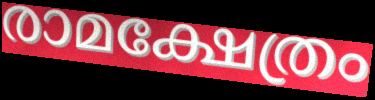
രാമക്ഷേത്രം